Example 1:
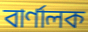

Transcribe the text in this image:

বাৰ্ণালক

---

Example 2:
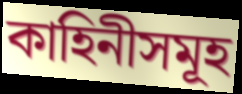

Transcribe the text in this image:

কাহিনীসমূহ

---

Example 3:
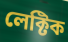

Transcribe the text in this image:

লেক্টিক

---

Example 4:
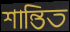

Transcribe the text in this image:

শান্তিত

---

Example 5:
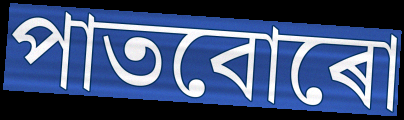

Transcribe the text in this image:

পাতবোৰো